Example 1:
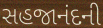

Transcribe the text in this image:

સહજાનંદની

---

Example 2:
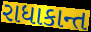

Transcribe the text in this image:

રાધાકાન્ત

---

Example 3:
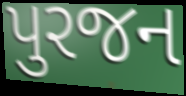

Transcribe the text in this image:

પુરજન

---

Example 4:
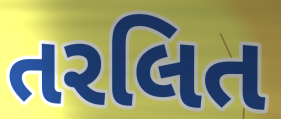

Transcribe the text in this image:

તરલિત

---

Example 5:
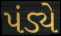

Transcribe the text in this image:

પંડ્યે